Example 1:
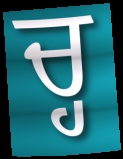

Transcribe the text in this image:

ਚ੍ਹ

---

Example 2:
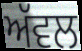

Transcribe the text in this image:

ਅੱਵਲ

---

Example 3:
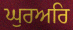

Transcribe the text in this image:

ਘੁਰਅਰਿ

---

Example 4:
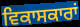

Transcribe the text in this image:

ਵਿਕਾਸਕਾਰਾਂ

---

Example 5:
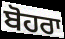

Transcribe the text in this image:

ਬੋਹਰਾ